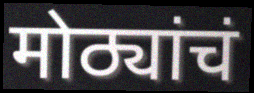
मोठ्यांचं